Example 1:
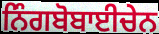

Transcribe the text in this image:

ਨਿੰਗਬੋਬਾਈਚੇਨ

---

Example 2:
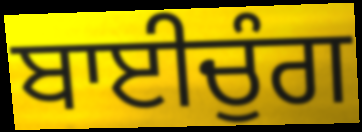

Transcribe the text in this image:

ਬਾਈਚੁੰਗ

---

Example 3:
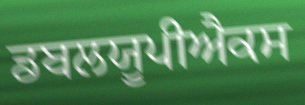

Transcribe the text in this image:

ਡਬਲਯੂਪੀਐਕਸ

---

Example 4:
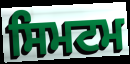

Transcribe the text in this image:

ਸਿਮਟਮ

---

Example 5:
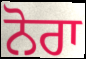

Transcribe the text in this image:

ਨੋਰਾ